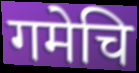
गमेचि